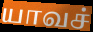
யாவச்